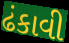
ઢંકાવી